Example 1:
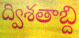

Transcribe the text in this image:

ద్విశతాబ్ది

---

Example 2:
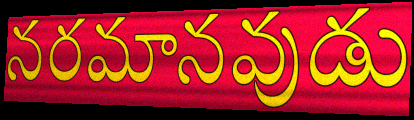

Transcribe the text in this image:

నరమానవుడు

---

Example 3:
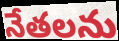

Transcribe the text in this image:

నేతలను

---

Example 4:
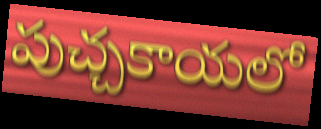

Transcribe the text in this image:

పుచ్చకాయలో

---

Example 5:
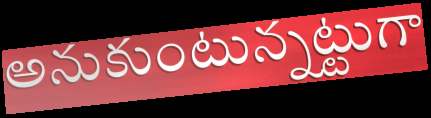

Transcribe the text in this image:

అనుకుంటున్నట్టుగా